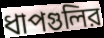
ধাপগুলির